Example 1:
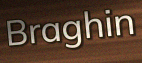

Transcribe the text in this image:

Braghin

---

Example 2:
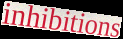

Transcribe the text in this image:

inhibitions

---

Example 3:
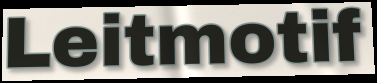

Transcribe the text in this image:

Leitmotif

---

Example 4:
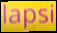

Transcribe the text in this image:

lapsi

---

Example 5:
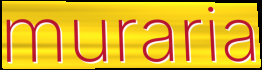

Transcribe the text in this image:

muraria